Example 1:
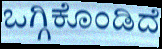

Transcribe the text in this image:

ಒಗ್ಗಿಕೊಂಡಿದೆ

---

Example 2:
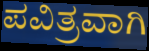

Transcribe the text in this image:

ಪವಿತ್ರವಾಗಿ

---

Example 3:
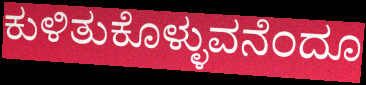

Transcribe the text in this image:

ಕುಳಿತುಕೊಳ್ಳುವನೆಂದೂ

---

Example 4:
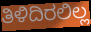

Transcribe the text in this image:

ತಿಳಿದಿರಲಿಲ್ಲ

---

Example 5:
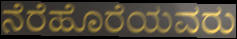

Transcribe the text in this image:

ನೆರೆಹೊರೆಯವರು